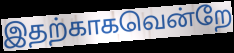
இதற்காகவென்றே